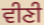
ਵੀਣੀ